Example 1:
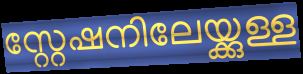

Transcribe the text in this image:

സ്റ്റേഷനിലേയ്ക്കുള്ള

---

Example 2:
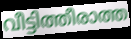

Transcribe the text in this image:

വീട്ടിത്തീരാത്ത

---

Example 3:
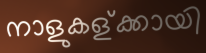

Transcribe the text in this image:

നാളുകള്ക്കായി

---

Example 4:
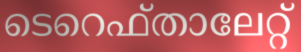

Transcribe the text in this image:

ടെറെഫ്താലേറ്റ്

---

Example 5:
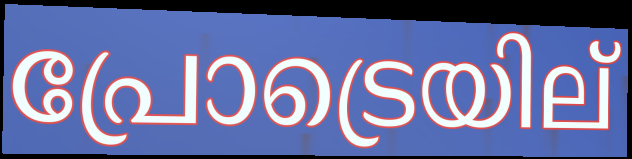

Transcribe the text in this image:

പ്രോട്രെയില്